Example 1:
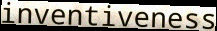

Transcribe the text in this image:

inventiveness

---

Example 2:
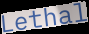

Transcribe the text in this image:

Lethal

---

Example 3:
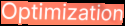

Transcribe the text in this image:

Optimization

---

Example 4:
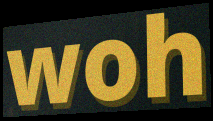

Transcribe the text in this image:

woh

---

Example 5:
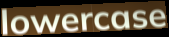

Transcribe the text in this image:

lowercase